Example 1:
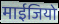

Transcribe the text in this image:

माईजियो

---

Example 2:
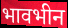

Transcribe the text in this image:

भावभीन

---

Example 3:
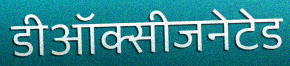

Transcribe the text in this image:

डीऑक्सीजनेटेड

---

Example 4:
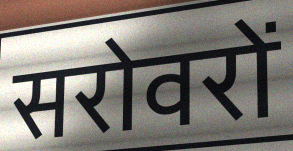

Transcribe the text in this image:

सरोवरों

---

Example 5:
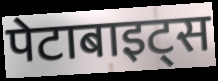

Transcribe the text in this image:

पेटाबाइट्स